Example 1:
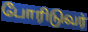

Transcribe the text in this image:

போரிடுவர்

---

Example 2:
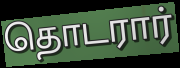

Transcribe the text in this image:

தொடரார்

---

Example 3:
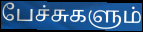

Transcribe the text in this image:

பேச்சுகளும்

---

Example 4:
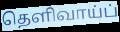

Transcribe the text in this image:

தெளிவாய்ப்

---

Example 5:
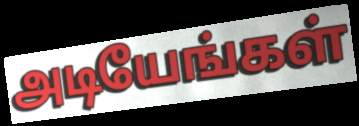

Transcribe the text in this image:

அடியேங்கள்